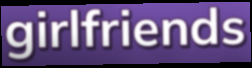
girlfriends